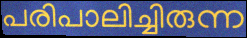
പരിപാലിച്ചിരുന്ന